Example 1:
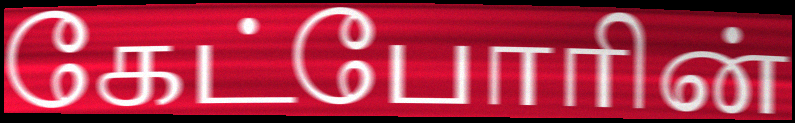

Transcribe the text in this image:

கேட்போரின்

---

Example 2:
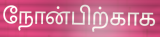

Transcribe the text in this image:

நோன்பிற்காக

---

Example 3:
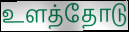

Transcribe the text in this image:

உளத்தோடு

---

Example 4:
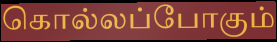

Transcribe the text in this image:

கொல்லப்போகும்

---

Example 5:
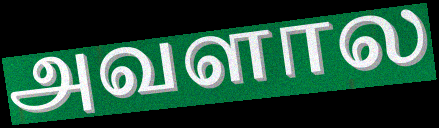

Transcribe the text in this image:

அவளால